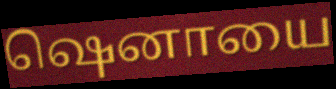
ஷெனாயை